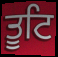
ਤੂਟਿ